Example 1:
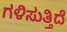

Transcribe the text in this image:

ಗಳಿಸುತ್ತಿದೆ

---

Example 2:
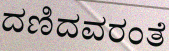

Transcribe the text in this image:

ದಣಿದವರಂತೆ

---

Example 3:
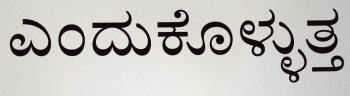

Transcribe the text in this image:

ಎಂದುಕೊಳ್ಳುತ್ತ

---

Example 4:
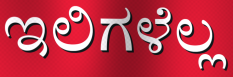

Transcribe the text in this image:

ಇಲಿಗಳೆಲ್ಲ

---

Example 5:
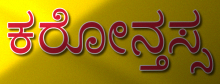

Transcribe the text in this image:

ಕರೋನ್ತಸ್ಸ